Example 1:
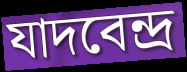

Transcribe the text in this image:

যাদবেন্দ্র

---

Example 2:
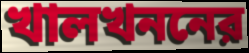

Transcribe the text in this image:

খালখননের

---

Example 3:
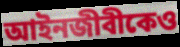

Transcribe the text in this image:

আইনজীবীকেও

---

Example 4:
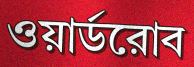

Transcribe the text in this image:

ওয়ার্ডরোব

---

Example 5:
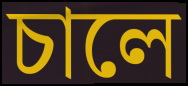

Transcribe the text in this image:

চালে